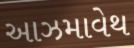
આઝમાવેથ